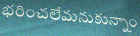
భరించలేమనుకున్నాం